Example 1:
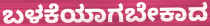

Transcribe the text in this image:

ಬಳಕೆಯಾಗಬೇಕಾದ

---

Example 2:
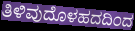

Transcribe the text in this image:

ತಿಳಿವುದೊಳಹದದಿಂದ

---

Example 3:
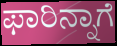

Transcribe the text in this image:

ಫಾರಿನ್ನಾಗೆ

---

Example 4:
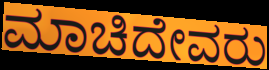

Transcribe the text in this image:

ಮಾಚಿದೇವರು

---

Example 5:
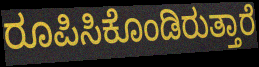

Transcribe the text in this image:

ರೂಪಿಸಿಕೊಂಡಿರುತ್ತಾರೆ